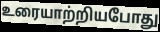
உரையாற்றியபோது